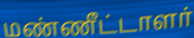
மண்ணீட்டாளர்